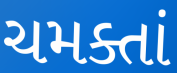
ચમક્તાં